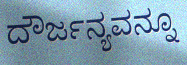
ದೌರ್ಜನ್ಯವನ್ನೂ